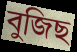
বুজিছ